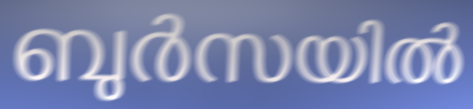
ബുർസയിൽ